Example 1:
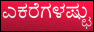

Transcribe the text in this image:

ಎಕರೆಗಳಷ್ಟು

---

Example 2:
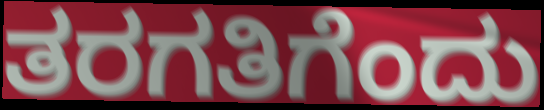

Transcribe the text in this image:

ತರಗತಿಗೆಂದು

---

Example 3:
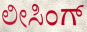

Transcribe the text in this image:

ಲೀಸಿಂಗ್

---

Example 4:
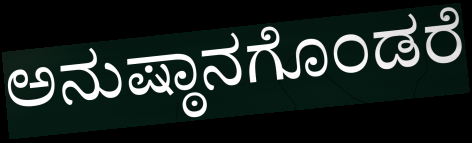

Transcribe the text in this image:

ಅನುಷ್ಠಾನಗೊಂಡರೆ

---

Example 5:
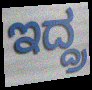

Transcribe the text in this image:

ಇದ್ದ್ರ